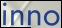
inno